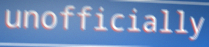
unofficially